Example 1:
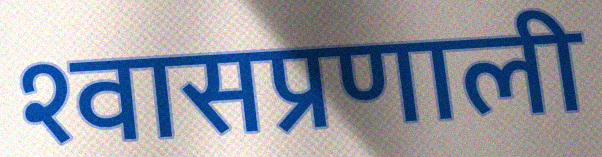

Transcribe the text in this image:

श्वासप्रणाली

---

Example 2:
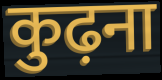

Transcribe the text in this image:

कुढ़ना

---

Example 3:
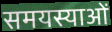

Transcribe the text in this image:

समयस्याओं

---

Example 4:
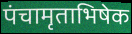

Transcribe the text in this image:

पंचामृताभिषेक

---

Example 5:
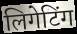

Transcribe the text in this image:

लिगेटिंग